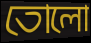
তোলো